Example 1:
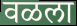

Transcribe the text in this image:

वळला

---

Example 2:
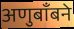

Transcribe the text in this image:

अणुबाँबने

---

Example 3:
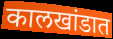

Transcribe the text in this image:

कालखांडात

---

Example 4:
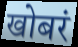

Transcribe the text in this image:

खोबरं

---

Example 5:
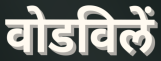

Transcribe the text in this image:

वोडविलें